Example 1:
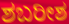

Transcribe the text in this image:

ಶಬರೀಶ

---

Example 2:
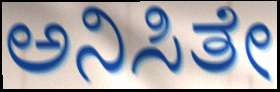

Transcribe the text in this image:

ಅನಿಸಿತೇ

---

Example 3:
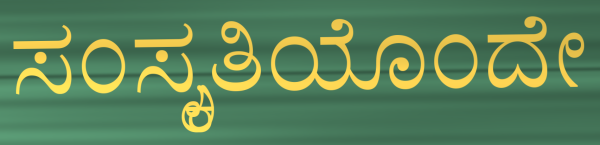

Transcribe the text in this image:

ಸಂಸ್ಕೃತಿಯೊಂದೇ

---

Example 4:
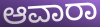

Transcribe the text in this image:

ಆವಾರಾ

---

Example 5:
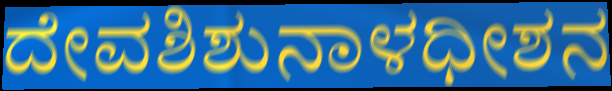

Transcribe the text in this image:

ದೇವಶಿಶುನಾಳಧೀಶನ